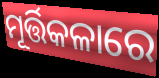
ମୂର୍ତ୍ତିକଳାରେ